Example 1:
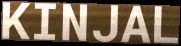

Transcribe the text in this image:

KINJAL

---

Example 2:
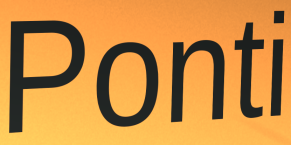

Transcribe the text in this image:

Ponti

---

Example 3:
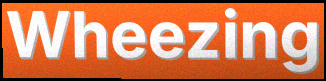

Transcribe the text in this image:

Wheezing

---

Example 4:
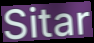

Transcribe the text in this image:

Sitar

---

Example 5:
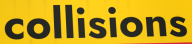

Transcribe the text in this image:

collisions